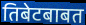
तिबेटबाबत